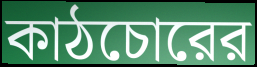
কাঠচোরের